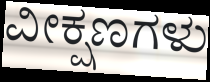
ವೀಕ್ಷಣಗಳು